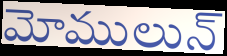
మోములున్